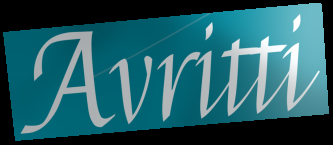
Avritti